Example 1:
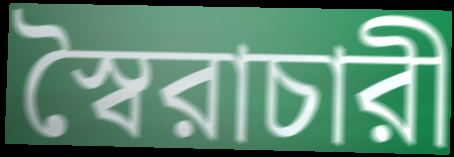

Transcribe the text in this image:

স্বৈরাচারী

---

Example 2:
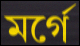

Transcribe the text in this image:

মর্গে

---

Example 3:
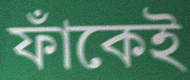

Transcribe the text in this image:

ফাঁকেই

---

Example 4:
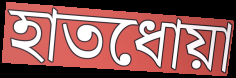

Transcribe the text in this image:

হাতধোয়া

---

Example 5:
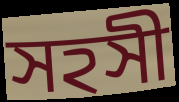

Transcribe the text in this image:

সহসী